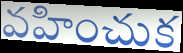
వహించుక